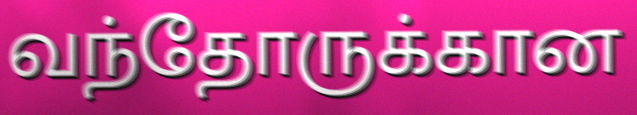
வந்தோருக்கான